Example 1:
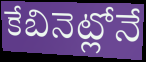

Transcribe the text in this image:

కేబినెట్లోనే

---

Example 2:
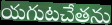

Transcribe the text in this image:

యగుటచేతను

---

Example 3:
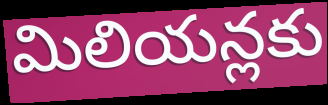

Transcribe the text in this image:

మిలియన్లకు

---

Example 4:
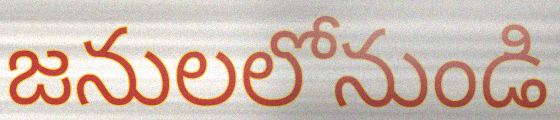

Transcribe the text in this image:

జనులలోనుండి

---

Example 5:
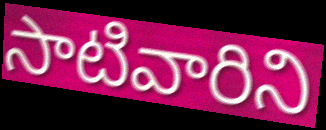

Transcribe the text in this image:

సాటివారిని